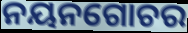
ନୟନଗୋଚର